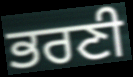
ਭਰਣੀ